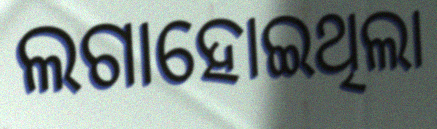
ଲଗାହୋଇଥିଲା